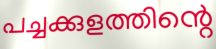
പച്ചക്കുളത്തിന്റെ